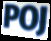
POJ